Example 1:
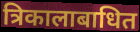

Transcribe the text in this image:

त्रिकालाबाधित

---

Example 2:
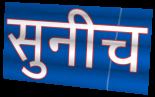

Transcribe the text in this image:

सुनीच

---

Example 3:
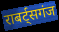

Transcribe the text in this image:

राबर्ट्सगंज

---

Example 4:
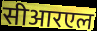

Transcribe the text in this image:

सीआरएल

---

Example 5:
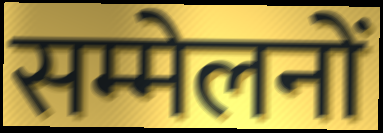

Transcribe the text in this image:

सम्‍मेलनों